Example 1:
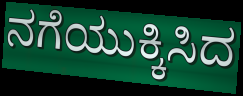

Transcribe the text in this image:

ನಗೆಯುಕ್ಕಿಸಿದ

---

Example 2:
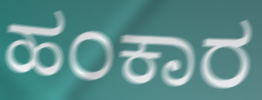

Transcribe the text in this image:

ಹಂಕಾರ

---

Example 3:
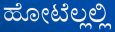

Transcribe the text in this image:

ಹೋಟೆಲ್ಲಲ್ಲಿ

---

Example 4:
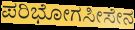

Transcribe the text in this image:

ಪರಿಭೋಗಸೀಸೇನ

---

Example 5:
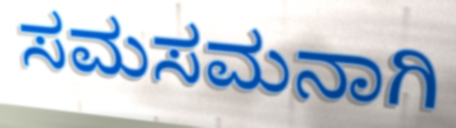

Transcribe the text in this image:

ಸಮಸಮನಾಗಿ